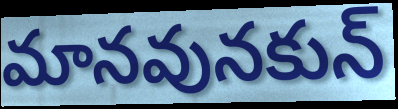
మానవునకున్